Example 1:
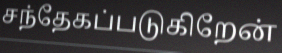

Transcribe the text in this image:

சந்தேகப்படுகிறேன்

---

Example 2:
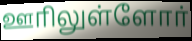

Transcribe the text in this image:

ஊரிலுள்ளோர்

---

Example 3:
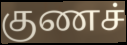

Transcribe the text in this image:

குணச்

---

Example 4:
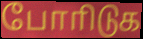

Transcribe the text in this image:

போரிடுக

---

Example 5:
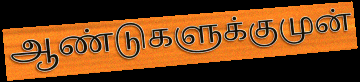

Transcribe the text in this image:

ஆண்டுகளுக்குமுன்